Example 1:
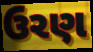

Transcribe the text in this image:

ઉરણ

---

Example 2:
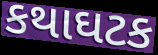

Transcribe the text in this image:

કથાઘટક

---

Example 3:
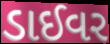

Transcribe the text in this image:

ડાઈવર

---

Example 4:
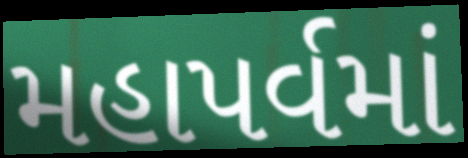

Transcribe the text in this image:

મહાપર્વમાં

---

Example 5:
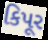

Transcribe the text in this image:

કિપૂર